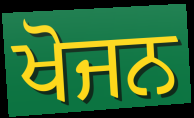
ਖੋਜਨ